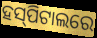
ହସ୍‌ପିଟାଲରେ